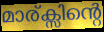
മാര്ക്സിന്റെ